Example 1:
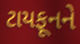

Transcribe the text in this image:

ટાયફૂનને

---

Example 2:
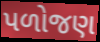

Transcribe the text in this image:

પળોજણ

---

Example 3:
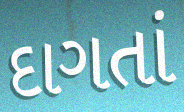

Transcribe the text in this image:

દાગતાં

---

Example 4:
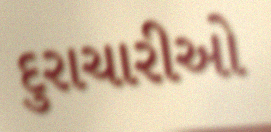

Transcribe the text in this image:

દુરાચારીઓ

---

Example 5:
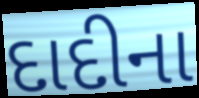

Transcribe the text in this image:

દાદીના